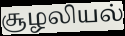
சூழலியல்